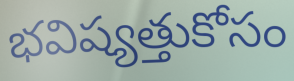
భవిష్యత్తుకోసం